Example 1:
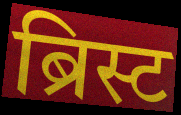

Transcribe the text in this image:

ब्रिस्ट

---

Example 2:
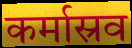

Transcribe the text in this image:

कर्मास्रव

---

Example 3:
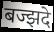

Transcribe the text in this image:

बज्झदे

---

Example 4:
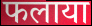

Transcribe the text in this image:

फलाया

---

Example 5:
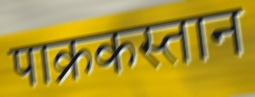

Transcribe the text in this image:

पाक्रकस्तान